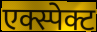
एक्स्पेक्ट